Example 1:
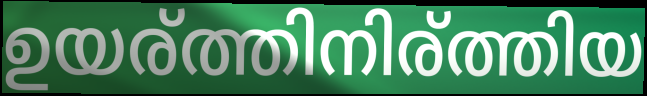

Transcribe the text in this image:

ഉയര്ത്തിനിര്ത്തിയ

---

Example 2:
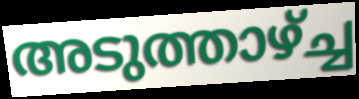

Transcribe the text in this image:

അടുത്താഴ്ച്ച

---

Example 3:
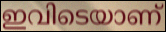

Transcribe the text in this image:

ഇവിടെയാണ്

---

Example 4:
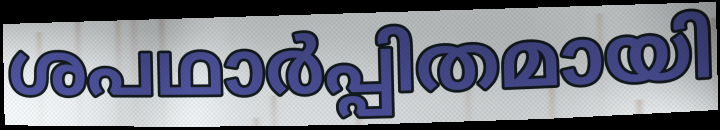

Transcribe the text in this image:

ശപഥാർപ്പിതമായി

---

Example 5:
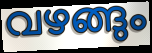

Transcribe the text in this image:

വഴങ്ങും